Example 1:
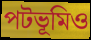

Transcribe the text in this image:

পটভূমিও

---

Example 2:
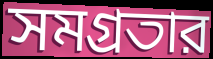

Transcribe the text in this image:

সমগ্রতার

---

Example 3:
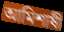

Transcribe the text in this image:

আমিশাষী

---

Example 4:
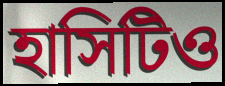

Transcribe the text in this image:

হাসিটিও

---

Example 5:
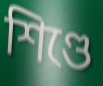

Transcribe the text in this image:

শিণ্ডে